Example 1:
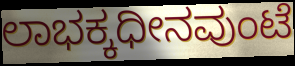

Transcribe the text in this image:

ಲಾಭಕ್ಕಧೀನವುಂಟೆ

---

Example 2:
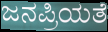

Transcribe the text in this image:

ಜನಪ್ರಿಯತೆ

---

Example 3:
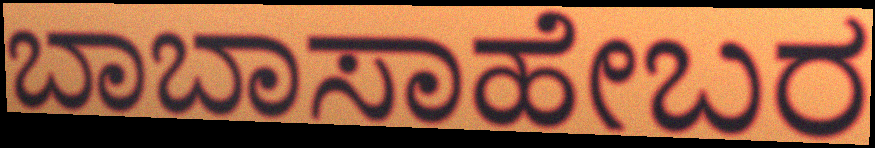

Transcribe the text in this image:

ಬಾಬಾಸಾಹೇಬರ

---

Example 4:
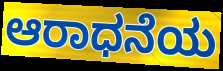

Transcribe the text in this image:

ಆರಾಧನೆಯ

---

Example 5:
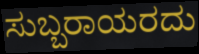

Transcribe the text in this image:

ಸುಬ್ಬರಾಯರದು